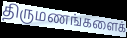
திருமணங்களைக்